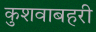
कुशवाबहरी